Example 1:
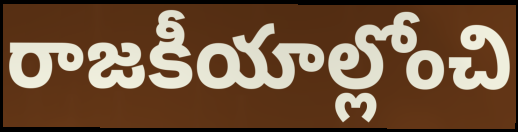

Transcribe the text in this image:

రాజకీయాల్లోంచి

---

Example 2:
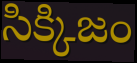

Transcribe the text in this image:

సిక్కిజం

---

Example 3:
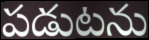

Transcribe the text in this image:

పడుటను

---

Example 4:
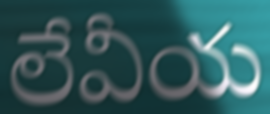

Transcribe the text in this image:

లేవీయ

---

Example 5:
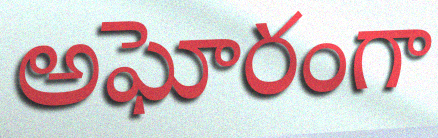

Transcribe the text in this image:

అఘోరంగా